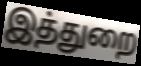
இத்துறை